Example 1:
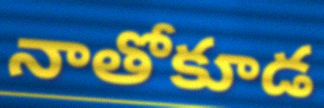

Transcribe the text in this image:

నాతోకూడ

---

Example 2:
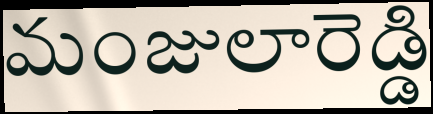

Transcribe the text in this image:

మంజులారెడ్డి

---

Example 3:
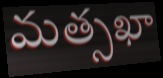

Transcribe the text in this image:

మత్సఖా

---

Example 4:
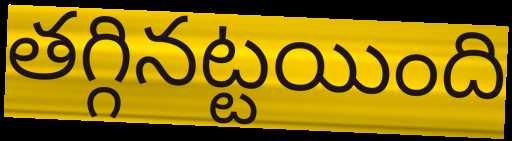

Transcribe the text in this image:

తగ్గినట్టయింది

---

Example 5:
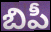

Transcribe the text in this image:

బిపీ